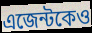
এজেন্টকেও